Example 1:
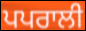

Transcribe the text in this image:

ਪਪਰਾਲੀ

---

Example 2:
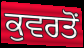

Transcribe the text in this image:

ਕੁਵਰਤੋਂ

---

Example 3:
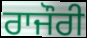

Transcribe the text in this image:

ਰਾਜੌਰੀ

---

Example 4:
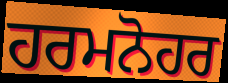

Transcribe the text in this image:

ਹਰਮਨੋਹਰ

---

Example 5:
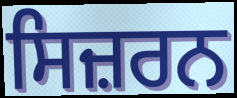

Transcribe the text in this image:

ਸਿਜ਼ਰਨ